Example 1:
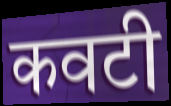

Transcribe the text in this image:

कवटी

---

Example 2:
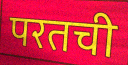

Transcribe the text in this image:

परतची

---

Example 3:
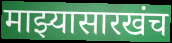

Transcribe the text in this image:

माझ्यासारखंच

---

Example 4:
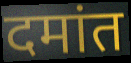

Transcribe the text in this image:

दमांत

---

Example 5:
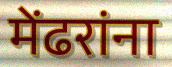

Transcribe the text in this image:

मेंढरांना